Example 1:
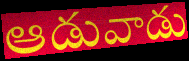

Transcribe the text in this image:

ఆడువాడు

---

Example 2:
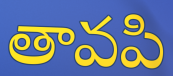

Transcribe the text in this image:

తావపి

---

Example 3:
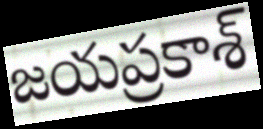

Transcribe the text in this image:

జయప్రకాశ్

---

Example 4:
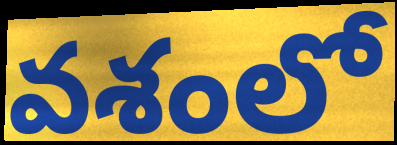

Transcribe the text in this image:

వశంలో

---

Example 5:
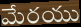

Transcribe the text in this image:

మేరయు